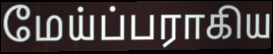
மேய்ப்பராகிய